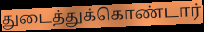
துடைத்துக்கொண்டார்